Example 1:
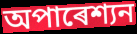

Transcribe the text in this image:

অপাৰেশ্যন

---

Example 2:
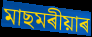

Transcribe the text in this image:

মাছমৰীয়াৰ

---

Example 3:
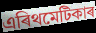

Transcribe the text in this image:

এৰিথমেটিকাৰ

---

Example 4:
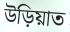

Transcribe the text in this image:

উড়িয়াত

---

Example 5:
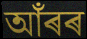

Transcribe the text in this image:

আঁৰৰ